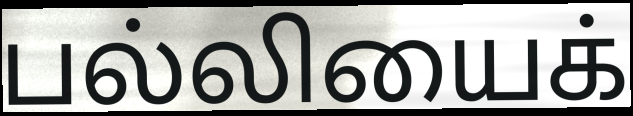
பல்லியைக்